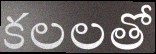
కలలతో